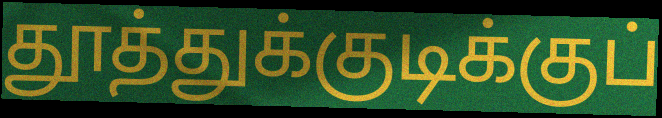
தூத்துக்குடிக்குப்